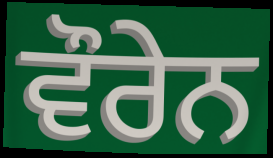
ਵੌਰੇਨ